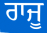
ਰਾਜੂ